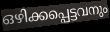
ഒഴിക്കപ്പെട്ടവനും